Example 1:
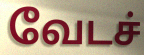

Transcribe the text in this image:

வேடச்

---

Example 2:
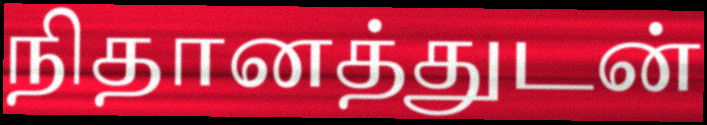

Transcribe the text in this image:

நிதானத்துடன்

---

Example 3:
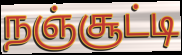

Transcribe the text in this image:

நஞ்சூட்டி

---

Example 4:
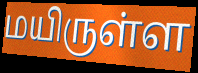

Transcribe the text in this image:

மயிருள்ள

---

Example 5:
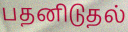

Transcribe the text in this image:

பதனிடுதல்